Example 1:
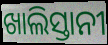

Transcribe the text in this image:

ଖାଲିସ୍ତାନୀ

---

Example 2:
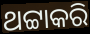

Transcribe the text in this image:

ଥଟ୍ଟାକରି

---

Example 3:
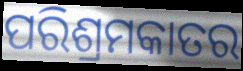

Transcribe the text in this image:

ପରିଶ୍ରମକାତର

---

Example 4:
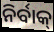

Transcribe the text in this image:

ନିର୍ବାକ୍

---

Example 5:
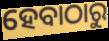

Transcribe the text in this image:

ହେବାଠାରୁ